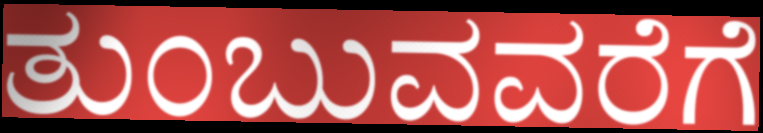
ತುಂಬುವವರೆಗೆ